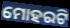
ମୋହରଟି